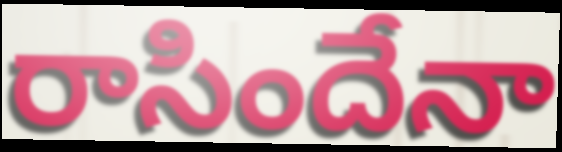
రాసిందేనా